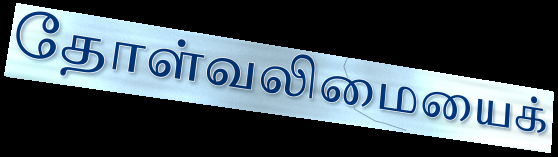
தோள்வலிமையைக்